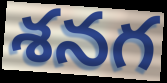
శనగ